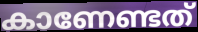
കാണേണ്ടത്